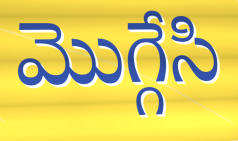
మొగ్గేసి